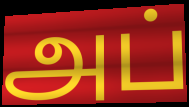
அப்